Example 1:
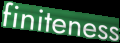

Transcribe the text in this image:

finiteness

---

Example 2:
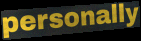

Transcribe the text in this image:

personally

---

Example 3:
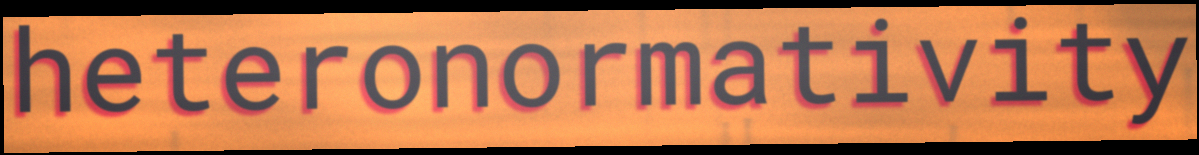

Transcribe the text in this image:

heteronormativity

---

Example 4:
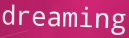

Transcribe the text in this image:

dreaming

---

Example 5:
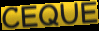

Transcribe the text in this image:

CEQUE